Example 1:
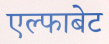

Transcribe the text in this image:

एल्फाबेट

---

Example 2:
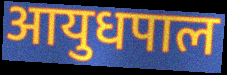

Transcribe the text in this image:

आयुधपाल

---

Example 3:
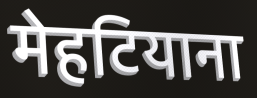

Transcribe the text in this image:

मेहटियाना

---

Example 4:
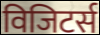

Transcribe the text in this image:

विजिटर्स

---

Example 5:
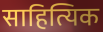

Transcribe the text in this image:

साहित्यिक